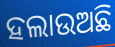
ହଲାଉଅଛି